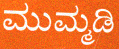
ಮುಮ್ಮಡಿ